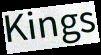
Kings